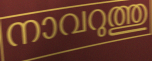
നാവറുത്തു